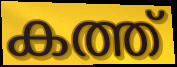
കത്ത്